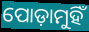
ପୋଡ଼ାମୁହିଁ